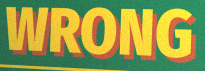
WRONG